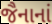
જૈનાનાં